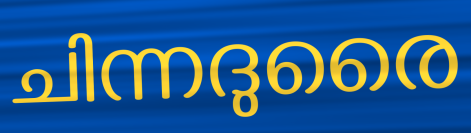
ചിന്നദുരൈ